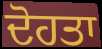
ਦੋਹਤਾ